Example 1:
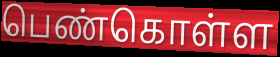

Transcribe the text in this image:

பெண்கொள்ள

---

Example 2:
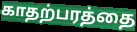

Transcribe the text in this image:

காதற்பரத்தை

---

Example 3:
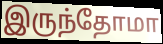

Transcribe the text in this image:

இருந்தோமா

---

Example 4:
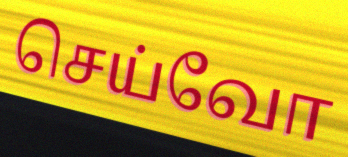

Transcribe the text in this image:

செய்வோ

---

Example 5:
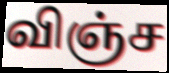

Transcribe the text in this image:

விஞ்ச